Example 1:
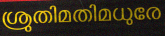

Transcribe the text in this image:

ശ്രുതിമതിമധുരേ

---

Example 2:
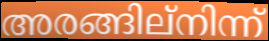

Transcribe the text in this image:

അരങ്ങില്നിന്ന്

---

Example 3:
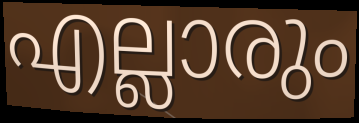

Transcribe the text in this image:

എല്ലാരും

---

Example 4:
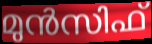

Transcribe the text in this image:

മുൻസിഫ്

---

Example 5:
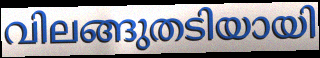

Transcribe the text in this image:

വിലങ്ങുതടിയായി